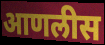
आणलीस